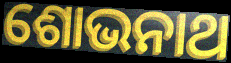
ଶୋଭନାଥ